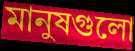
মানুষগুলো